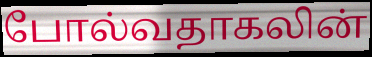
போல்வதாகலின்